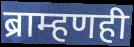
ब्राम्हणही